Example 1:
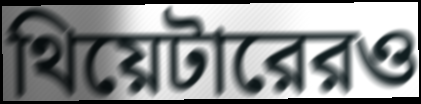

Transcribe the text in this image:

থিয়েটারেরও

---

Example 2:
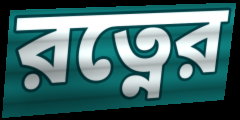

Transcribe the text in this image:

রত্নের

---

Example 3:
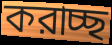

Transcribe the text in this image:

করাচ্ছ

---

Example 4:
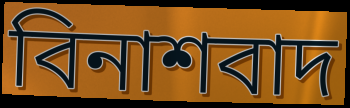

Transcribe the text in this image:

বিনাশবাদ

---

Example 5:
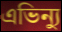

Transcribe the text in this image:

এভিন্যু